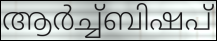
ആർച്ച്ബിഷപ്